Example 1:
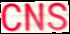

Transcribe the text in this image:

CNS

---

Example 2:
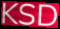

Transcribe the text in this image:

KSD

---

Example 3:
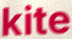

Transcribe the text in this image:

kite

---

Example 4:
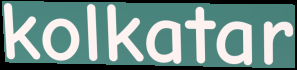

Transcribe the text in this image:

kolkatar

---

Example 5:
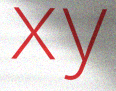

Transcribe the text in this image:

xy